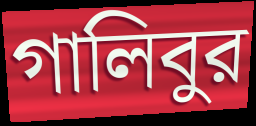
গালিবুর